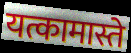
यत्कामास्ते